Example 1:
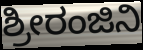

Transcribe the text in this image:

ಶ್ರೀರಂಜಿನಿ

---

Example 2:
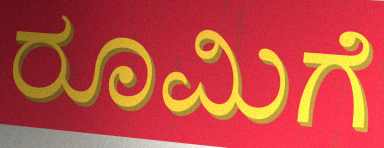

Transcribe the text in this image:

ರೂಮಿಗೆ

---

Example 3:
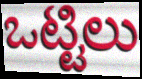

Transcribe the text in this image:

ಒಟ್ಟಿಲು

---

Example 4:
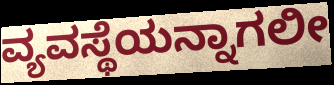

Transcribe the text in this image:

ವ್ಯವಸ್ಥೆಯನ್ನಾಗಲೀ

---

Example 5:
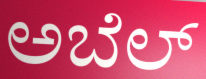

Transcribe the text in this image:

ಅಬೆಲ್